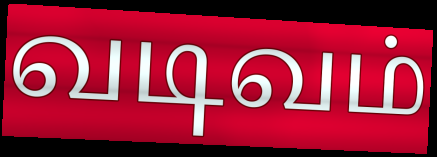
வடிவம்